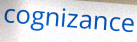
cognizance